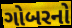
ગોબરનો